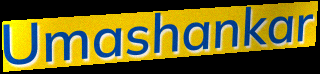
Umashankar